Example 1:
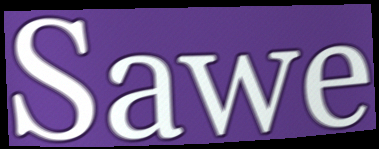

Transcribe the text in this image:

Sawe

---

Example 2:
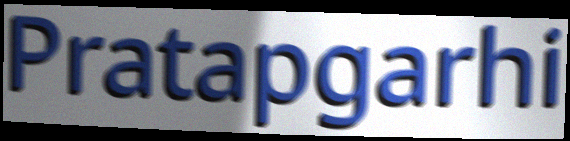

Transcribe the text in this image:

Pratapgarhi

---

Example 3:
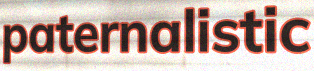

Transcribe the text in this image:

paternalistic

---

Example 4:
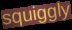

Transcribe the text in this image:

squiggly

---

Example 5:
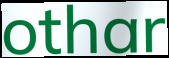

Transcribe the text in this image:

othar